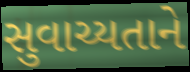
સુવાચ્યતાને